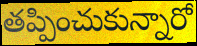
తప్పించుకున్నారో